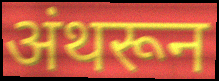
अंथरून